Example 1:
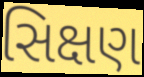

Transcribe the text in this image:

સિક્ષણ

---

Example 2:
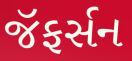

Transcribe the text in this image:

જૅફર્સન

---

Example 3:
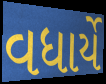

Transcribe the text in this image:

વધાર્યે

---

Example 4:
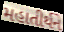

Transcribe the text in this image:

મહાતીર્થને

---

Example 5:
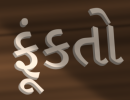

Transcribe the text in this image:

ફૂંકતો